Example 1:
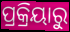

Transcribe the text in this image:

ପ୍ରକ୍ରିୟାରୁ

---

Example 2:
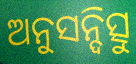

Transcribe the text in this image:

ଅନୁସନ୍ଦିତ୍ସୁ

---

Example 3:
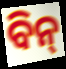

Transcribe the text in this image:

ବିନ୍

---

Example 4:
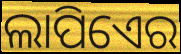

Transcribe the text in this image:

ଲାପିଏେର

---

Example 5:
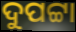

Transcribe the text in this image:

ଦୁପଟ୍ଟା